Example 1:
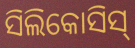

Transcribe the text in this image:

ସିଲିକୋସିସ୍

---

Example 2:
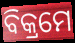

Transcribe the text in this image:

ବିକ୍ରମେ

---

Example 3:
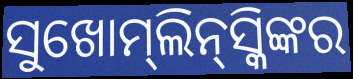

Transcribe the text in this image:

ସୁଖୋମ୍‍ଲିନ୍‍ସ୍କିଙ୍କର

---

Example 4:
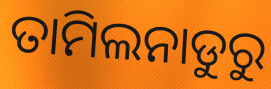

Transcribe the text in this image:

ତାମିଲନାଡୁରୁ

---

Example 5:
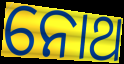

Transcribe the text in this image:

ନୋଥ